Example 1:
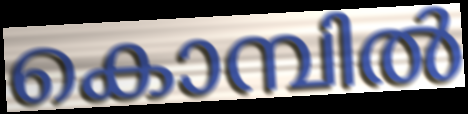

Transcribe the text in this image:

കൊമ്പിൽ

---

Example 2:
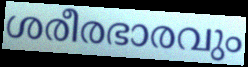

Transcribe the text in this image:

ശരീരഭാരവും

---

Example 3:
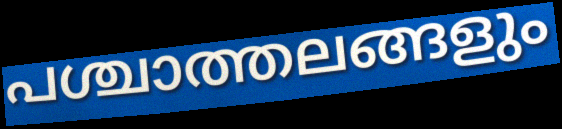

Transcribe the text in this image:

പശ്ചാത്തലങ്ങളും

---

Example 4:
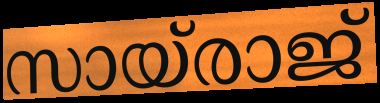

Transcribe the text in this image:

സായ്രാജ്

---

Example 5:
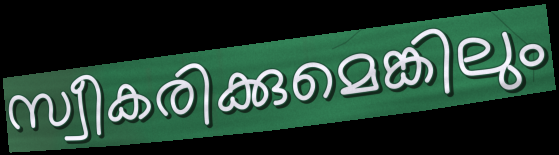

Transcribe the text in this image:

സ്വീകരിക്കുമെങ്കിലും